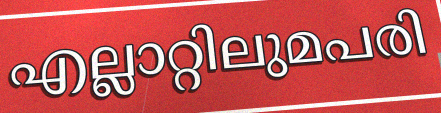
എല്ലാറ്റിലുമപരി